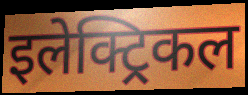
इलेक्ट्रिकल